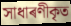
সাধাৰণীকৃত